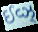
ઈવ્ઝ્